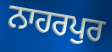
ਨਾਹਰਪੁਰ